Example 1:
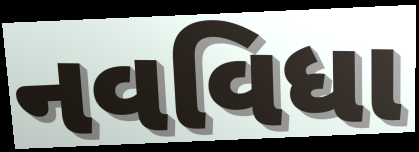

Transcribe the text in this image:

નવવિધા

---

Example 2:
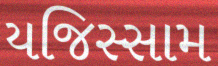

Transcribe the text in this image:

યજિસ્સામ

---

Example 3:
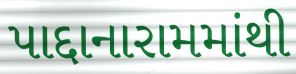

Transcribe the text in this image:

પાદ્દાનારામમાંથી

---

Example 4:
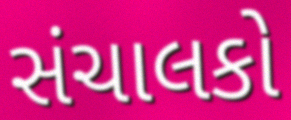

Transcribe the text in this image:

સંચાલકો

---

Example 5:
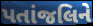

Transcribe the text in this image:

પતાંજલિને